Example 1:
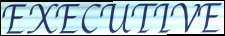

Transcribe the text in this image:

EXECUTIVE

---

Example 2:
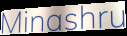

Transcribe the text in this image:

Minashru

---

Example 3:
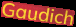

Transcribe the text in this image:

Gaudich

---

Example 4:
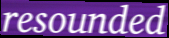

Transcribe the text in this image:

resounded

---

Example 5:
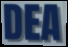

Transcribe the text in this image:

DEA